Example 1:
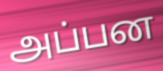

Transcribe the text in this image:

அப்பன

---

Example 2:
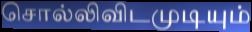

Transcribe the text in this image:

சொல்லிவிடமுடியும்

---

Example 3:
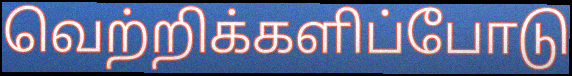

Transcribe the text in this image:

வெற்றிக்களிப்போடு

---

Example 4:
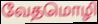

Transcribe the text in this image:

வேதமொழி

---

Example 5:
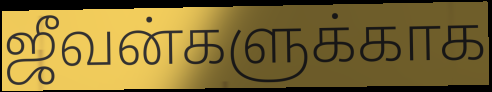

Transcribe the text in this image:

ஜீவன்களுக்காக